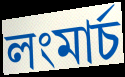
লংমার্চ